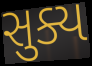
સુક્ય